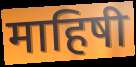
माहिषी